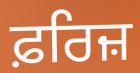
ਫ਼ਰਿਜ਼